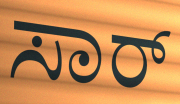
ಸಾರ್